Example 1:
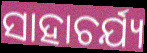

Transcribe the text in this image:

ସାହାଚର୍ଯ୍ୟ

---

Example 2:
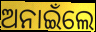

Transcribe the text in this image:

ଅନାଇଁଲେ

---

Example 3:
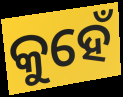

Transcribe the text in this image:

କୁହେଁ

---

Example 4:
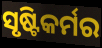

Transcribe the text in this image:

ସୃଷ୍ଟିକର୍ମର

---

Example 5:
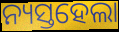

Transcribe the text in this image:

ନ୍ୟସ୍ତହେଲା